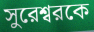
সুরেশ্বরকে